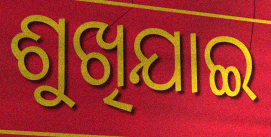
ଶୁଖିଯାଇ